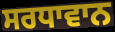
ਸਰਧਾਵਾਨ